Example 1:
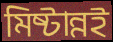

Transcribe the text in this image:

মিষ্টান্নই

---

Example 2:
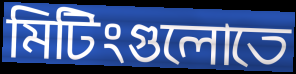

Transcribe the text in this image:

মিটিংগুলোতে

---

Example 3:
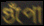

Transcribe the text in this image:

গুঁপো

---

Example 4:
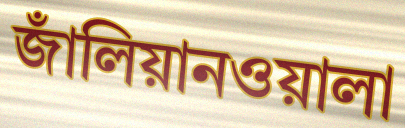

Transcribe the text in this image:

জাঁলিয়ানওয়ালা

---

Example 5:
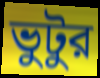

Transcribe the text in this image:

ভুটুর